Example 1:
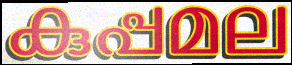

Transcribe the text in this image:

കുപ്പമല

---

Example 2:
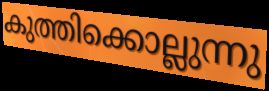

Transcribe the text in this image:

കുത്തിക്കൊല്ലുന്നു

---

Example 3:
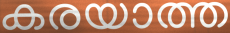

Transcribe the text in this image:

കരയാത്ത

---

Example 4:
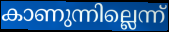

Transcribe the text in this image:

കാണുന്നില്ലെന്ന്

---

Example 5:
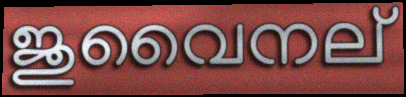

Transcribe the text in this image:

ജുവൈനല്